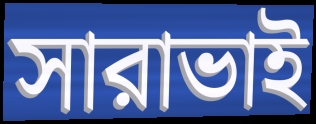
সারাভাই